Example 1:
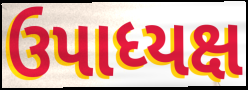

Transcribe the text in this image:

ઉપાધ્યક્ષ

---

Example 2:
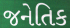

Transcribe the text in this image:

જનેતિક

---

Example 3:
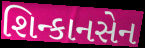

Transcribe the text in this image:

શિન્કાનસેન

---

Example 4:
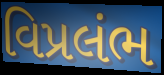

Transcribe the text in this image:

વિપ્રલંભ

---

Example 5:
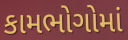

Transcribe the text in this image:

કામભોગોમાં